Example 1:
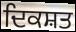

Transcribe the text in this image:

ਦਿਕਸ਼ਤ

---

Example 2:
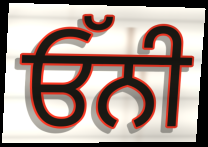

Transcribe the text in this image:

ਓੱਨੀ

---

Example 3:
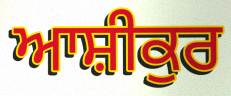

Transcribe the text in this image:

ਆਸ਼ੀਕੁਰ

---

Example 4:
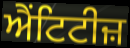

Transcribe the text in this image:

ਐਂਟਿਟੀਜ਼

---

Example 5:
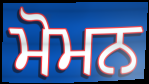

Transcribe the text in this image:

ਮੋਮਨ